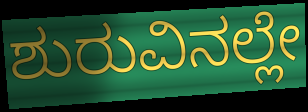
ಶುರುವಿನಲ್ಲೇ